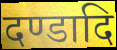
दण्डादि